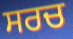
ਸਰਚ